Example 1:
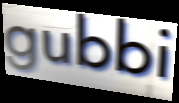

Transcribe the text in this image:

gubbi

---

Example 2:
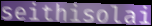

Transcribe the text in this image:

seithisolai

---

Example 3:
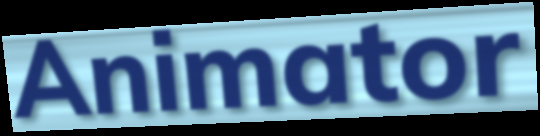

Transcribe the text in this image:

Animator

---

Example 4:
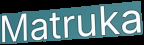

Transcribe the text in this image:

Matruka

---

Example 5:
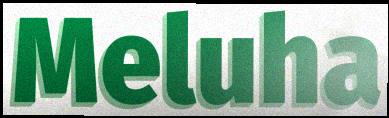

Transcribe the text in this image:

Meluha